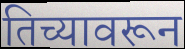
तिच्यावरून